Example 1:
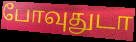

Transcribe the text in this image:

போவுதுடா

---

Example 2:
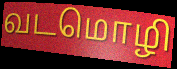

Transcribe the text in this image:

வடமொழி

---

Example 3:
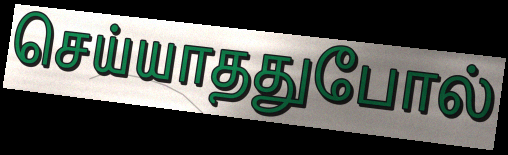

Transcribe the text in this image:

செய்யாததுபோல்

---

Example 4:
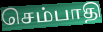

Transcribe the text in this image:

செம்பாதி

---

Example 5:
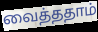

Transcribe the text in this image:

வைத்ததாம்